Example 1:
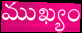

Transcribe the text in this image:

ముఖ్యం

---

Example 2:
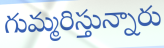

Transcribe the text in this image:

గుమ్మరిస్తున్నారు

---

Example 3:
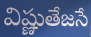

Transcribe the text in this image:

విష్ణుతేజసే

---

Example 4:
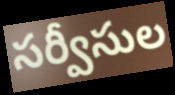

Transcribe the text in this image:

సర్వీసుల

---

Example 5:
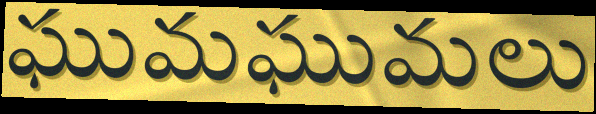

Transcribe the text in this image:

ఘుమఘుమలు